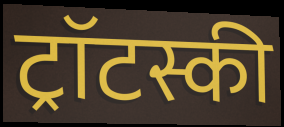
ट्रॉटस्की